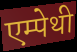
एम्पेथी